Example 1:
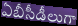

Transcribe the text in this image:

ఏబీసీడీలుగా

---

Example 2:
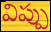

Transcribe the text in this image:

విప్పు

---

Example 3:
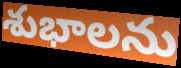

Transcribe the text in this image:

శుభాలను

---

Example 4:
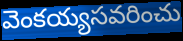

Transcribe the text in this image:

వెంకయ్యసవరించు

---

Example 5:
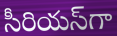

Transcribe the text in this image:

సీరియస్‌గా